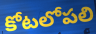
కోటలోపలి